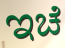
ಇಚೆ